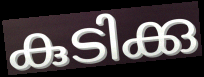
കുടിക്കു